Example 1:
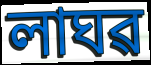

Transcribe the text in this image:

লাঘৱ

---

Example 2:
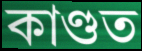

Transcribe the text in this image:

কাণ্ডত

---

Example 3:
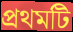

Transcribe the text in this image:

প্ৰথমটি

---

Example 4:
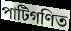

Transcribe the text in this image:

পাটিগণিত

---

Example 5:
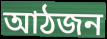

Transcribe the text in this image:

আঠজন